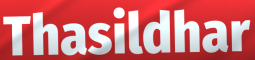
Thasildhar